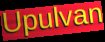
Upulvan